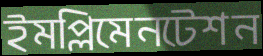
ইমপ্লিমেনটেশন